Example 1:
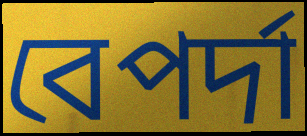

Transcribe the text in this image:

বেপর্দা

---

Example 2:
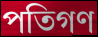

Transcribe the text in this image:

পতিগণ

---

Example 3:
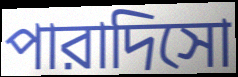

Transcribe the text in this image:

পারাদিসো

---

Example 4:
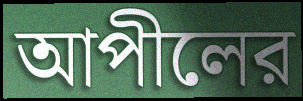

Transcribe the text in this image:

আপীলের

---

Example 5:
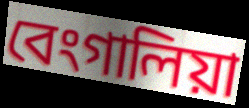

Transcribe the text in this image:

বেংগালিয়া